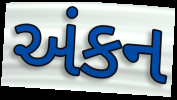
અંકન